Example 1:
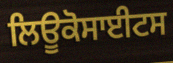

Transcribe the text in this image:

ਲਿਊਕੋਸਾਈਟਸ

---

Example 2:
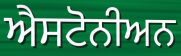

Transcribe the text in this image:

ਐਸਟੋਨੀਅਨ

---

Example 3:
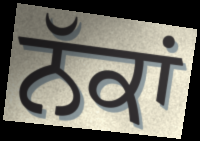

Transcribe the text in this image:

ਨੱਕਾਂ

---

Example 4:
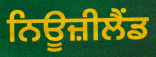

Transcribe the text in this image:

ਨਿਊਜ਼ੀਲੈੰਡ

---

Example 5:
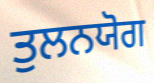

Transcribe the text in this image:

ਤੁਲਨਯੋਗ